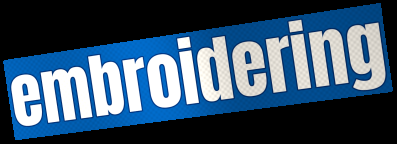
embroidering